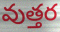
వుత్తర